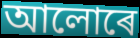
আলোৰে